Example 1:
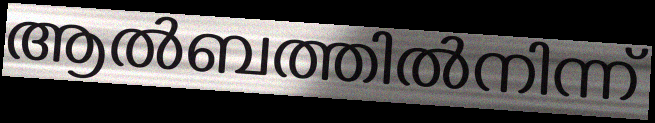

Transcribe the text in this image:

ആൽബത്തിൽനിന്ന്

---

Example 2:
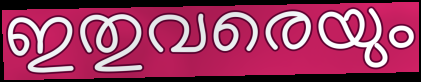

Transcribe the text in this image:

ഇതുവരെയും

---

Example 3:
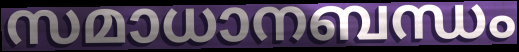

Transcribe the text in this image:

സമാധാനബന്ധം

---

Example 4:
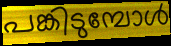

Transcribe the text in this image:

പങ്കിടുമ്പോൾ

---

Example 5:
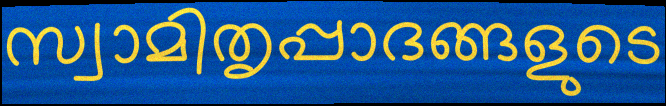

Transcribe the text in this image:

സ്വാമിതൃപ്പാദങ്ങളുടെ